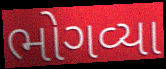
ભોગવ્યા